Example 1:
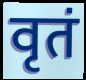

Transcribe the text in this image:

वृतं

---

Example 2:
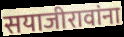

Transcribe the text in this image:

सयाजीरावांना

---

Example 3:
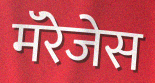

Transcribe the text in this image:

मॅरेजेस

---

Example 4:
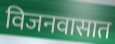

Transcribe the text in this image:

विजनवासात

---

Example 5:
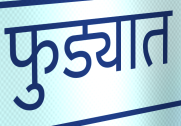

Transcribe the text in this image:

फुड्यात